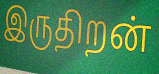
இருதிறன்